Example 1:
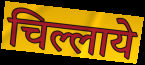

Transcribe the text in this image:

चिल्लाये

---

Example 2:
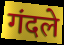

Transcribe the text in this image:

गंदले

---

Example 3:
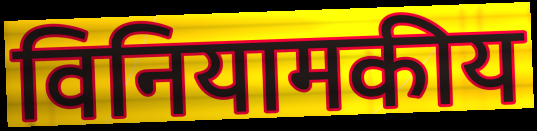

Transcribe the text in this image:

विनियामकीय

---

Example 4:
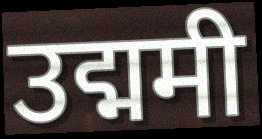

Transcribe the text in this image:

उद्ममी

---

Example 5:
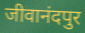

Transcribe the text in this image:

जीवानंदपुर